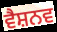
ਵੈਸ਼ਨਵ